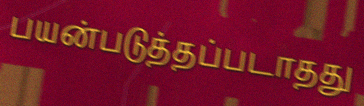
பயன்படுத்தப்படாதது